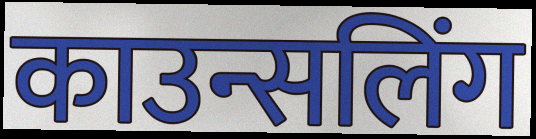
काउन्सलिंग